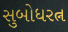
સુબોધરત્ન